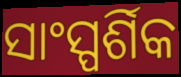
ସାଂସ୍ପର୍ଶିକ